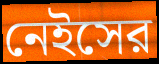
নেইসের